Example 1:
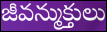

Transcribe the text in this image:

జీవన్ముక్తులు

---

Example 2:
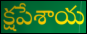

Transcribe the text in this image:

క్షపేశాయ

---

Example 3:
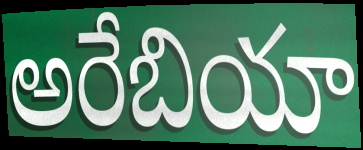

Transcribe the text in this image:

అరేబియా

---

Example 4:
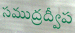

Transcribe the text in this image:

సముద్రద్వీప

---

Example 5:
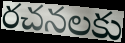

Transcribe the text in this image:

రచనలకు